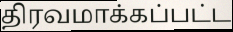
திரவமாக்கப்பட்ட